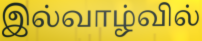
இல்வாழ்வில்